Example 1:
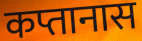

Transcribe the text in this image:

कप्तानास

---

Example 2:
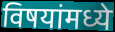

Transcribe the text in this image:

विषयांमध्ये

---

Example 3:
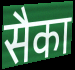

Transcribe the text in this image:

सैका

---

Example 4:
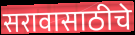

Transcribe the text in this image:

सरावासाठीचे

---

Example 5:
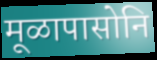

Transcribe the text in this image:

मूळापासोनि